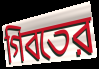
গিবতের